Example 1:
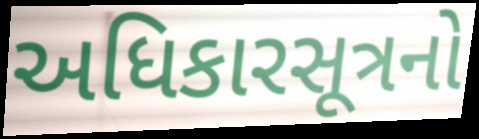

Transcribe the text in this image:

અધિકારસૂત્રનો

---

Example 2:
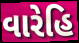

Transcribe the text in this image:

વારેહિ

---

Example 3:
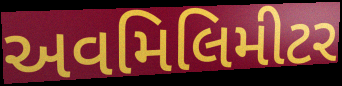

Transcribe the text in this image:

અવમિલિમીટર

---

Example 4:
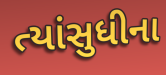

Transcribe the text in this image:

ત્યાંસુધીના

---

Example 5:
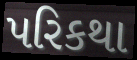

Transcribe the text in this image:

પરિકથા